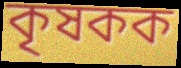
কৃষকক